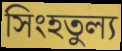
সিংহতুল্য